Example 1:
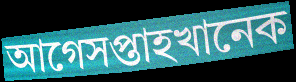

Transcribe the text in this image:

আগেসপ্তাহখানেক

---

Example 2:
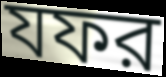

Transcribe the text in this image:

যফর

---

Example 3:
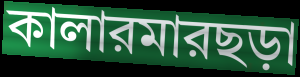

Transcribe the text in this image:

কালারমারছড়া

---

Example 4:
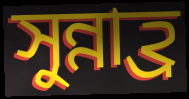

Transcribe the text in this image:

সুন্নাহ্র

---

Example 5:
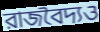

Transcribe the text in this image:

রাজবৈদ্যও